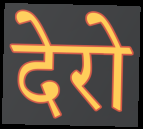
देरो